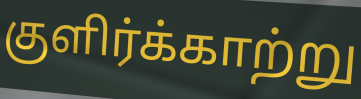
குளிர்க்காற்று